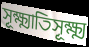
সূক্ষ্মাতিসূক্ষ্ম